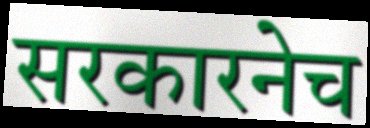
सरकारनेच